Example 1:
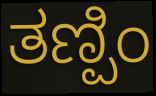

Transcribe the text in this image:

ತಣ್ಪಿಂ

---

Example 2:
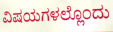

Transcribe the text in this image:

ವಿಷಯಗಳಲ್ಲೊಂದು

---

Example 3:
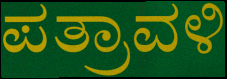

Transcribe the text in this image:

ಪತ್ರಾವಳಿ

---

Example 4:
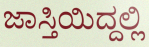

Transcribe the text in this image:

ಜಾಸ್ತಿಯಿದ್ದಲ್ಲಿ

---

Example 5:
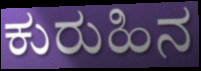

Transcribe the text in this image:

ಕುರುಹಿನ